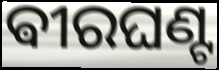
ଵୀରଘଣ୍ଟ